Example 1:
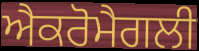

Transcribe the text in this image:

ਐਕਰੋਮੈਗਲੀ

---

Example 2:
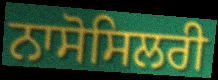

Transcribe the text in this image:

ਨਾਸੋਸਿਲਰੀ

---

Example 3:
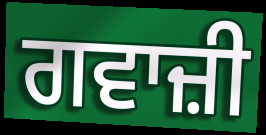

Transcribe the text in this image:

ਗਵਾਜ਼ੀ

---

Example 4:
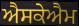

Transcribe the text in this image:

ਐਸਕੇਐਮ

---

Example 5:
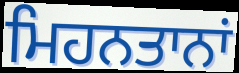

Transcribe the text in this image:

ਮਿਹਨਤਾਨਾਂ